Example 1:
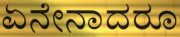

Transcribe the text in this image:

ಏನೇನಾದರೂ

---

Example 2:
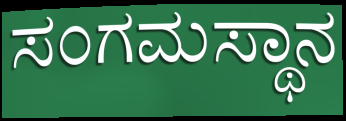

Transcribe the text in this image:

ಸಂಗಮಸ್ಥಾನ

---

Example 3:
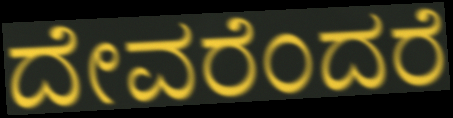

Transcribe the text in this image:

ದೇವರೆಂದರೆ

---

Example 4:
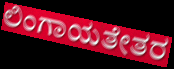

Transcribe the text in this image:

ಲಿಂಗಾಯತೇತರ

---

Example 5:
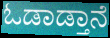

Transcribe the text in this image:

ಓಡಾಡ್ತಾನೆ